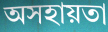
অসহায়তা